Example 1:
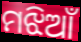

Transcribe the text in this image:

ମଝିଆଁ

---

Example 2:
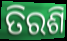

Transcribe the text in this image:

ତିରଶି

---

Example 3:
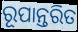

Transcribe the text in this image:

ରୂପାନ୍ତରିତ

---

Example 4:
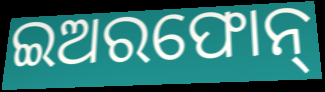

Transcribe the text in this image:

ଇଅରଫୋନ୍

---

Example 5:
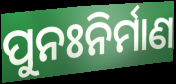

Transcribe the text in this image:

ପୁନଃନିର୍ମାଣ